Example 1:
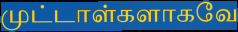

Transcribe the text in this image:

முட்டாள்களாகவே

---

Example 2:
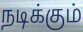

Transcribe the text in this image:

நடிக்கும்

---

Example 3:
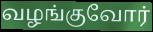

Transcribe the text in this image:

வழங்குவோர்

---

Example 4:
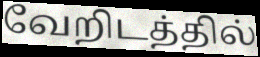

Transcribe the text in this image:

வேறிடத்தில்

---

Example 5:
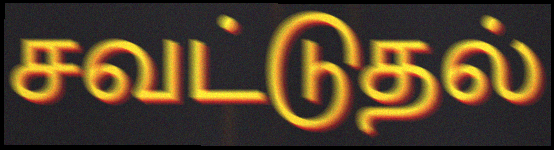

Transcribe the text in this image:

சவட்டுதல்